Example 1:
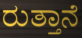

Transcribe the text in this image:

ರುತ್ತಾನೆ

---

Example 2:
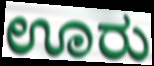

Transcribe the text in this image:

ಊರು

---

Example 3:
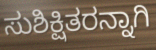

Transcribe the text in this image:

ಸುಶಿಕ್ಷಿತರನ್ನಾಗಿ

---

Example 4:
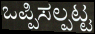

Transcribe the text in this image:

ಒಪ್ಪಿಸಲ್ಪಟ್ಟ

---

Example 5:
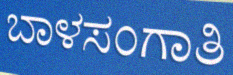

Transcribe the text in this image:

ಬಾಳಸಂಗಾತಿ